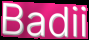
Badii